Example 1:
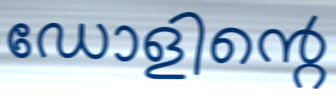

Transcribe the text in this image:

ഡോളിന്റെ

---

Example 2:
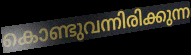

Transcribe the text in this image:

കൊണ്ടുവന്നിരിക്കുന്ന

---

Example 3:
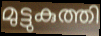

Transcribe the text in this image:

മുട്ടുകുത്തി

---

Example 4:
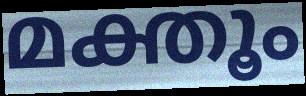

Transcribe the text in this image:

മക്തൂം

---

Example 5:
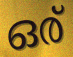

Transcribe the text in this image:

ഒര്